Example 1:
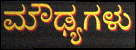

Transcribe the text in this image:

ಮೌಢ್ಯಗಳು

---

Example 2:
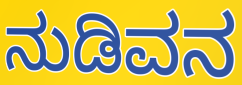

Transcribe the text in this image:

ನುಡಿವನ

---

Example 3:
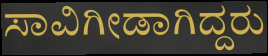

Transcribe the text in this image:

ಸಾವಿಗೀಡಾಗಿದ್ದರು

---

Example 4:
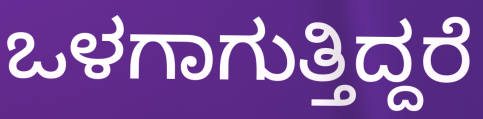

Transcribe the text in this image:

ಒಳಗಾಗುತ್ತಿದ್ದರೆ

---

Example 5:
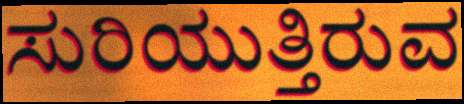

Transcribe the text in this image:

ಸುರಿಯುತ್ತಿರುವ